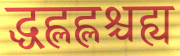
द्धह्लह्लश्चह्य